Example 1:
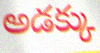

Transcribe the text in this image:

అడక్కు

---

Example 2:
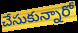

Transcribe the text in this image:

చేసుకున్నారో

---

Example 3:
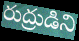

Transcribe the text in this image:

రుద్రుడిని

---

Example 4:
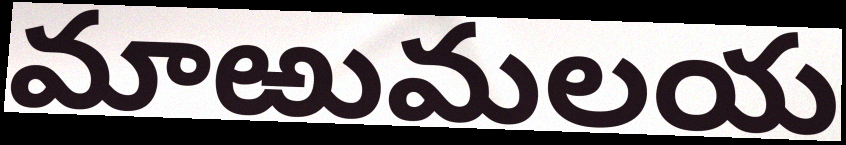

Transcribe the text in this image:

మాఱుమలయ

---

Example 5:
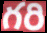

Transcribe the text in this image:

గరి